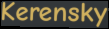
Kerensky